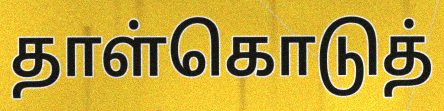
தாள்கொடுத்